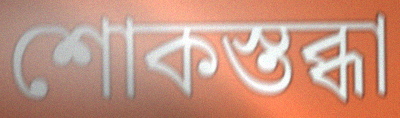
শোকস্তব্ধা